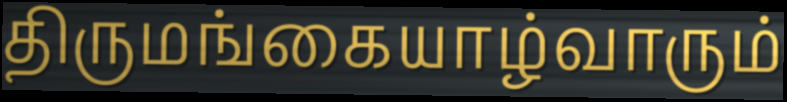
திருமங்கையாழ்வாரும்